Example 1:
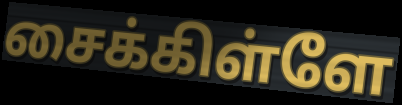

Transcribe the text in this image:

சைக்கிள்ளே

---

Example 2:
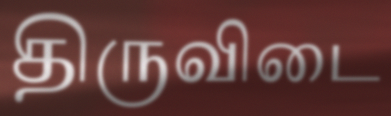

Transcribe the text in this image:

திருவிடை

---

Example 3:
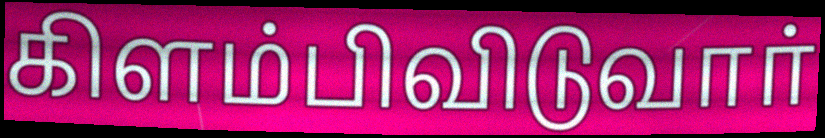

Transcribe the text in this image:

கிளம்பிவிடுவார்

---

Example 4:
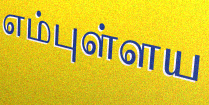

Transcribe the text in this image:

எம்புள்ளய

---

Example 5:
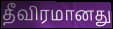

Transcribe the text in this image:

தீவிரமானது